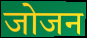
जोजन